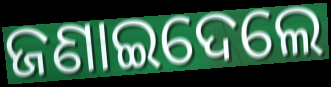
ଜଣାଇଦେଲେ